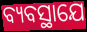
ବ୍ୟବସ୍ଥାଯେ